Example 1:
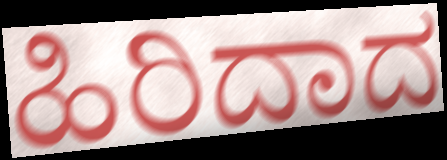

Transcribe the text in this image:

ಹಿರಿದಾದ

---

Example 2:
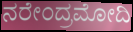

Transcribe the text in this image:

ನರೇಂದ್ರಮೋದಿ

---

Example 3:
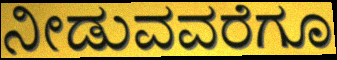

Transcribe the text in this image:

ನೀಡುವವರೆಗೂ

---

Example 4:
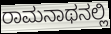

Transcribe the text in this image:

ರಾಮನಾಥನಲ್ಲಿ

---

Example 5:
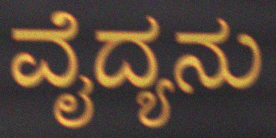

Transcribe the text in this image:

ವೈದ್ಯನು